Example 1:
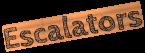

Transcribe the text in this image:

Escalators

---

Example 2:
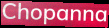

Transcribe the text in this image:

Chopanna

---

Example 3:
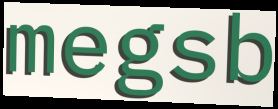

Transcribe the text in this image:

megsb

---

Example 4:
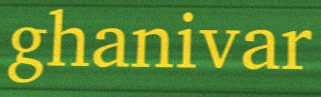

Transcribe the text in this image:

ghanivar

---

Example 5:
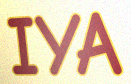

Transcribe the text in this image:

IYA